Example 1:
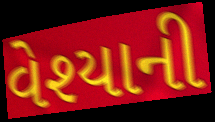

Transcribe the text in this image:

વેશ્યાની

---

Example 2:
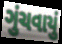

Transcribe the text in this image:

ગુંચવાયું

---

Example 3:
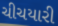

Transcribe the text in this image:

ચીચયારી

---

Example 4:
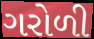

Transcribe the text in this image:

ગરોળી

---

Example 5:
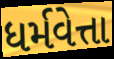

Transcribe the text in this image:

ધર્મવેત્તા